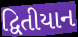
દ્વિતીયાન